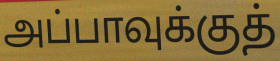
அப்பாவுக்குத்